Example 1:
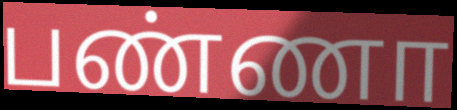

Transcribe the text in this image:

பண்ணா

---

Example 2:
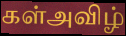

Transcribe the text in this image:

கள்அவிழ்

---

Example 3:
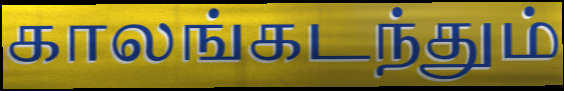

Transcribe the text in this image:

காலங்கடந்தும்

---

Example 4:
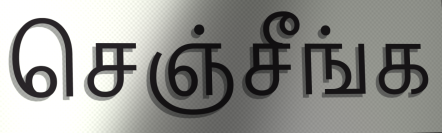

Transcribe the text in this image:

செஞ்சீங்க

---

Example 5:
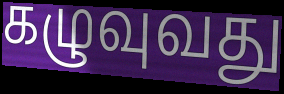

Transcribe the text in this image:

கழுவுவது